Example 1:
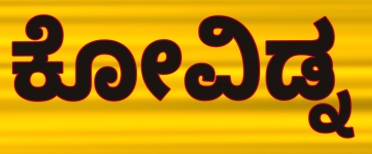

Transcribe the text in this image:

ಕೋವಿಡ್ನ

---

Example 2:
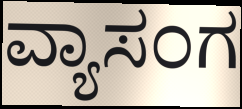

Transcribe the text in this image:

ವ್ಯಾಸಂಗ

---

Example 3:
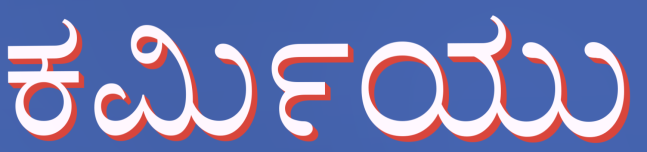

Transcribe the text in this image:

ಕರ್ಮಿಯು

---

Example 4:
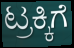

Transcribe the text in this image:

ಟ್ರಕ್ಕಿಗೆ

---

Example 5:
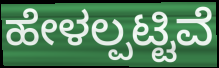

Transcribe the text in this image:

ಹೇಳಲ್ಪಟ್ಟಿವೆ